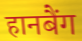
हानबैंग